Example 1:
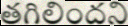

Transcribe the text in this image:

తగిలిందని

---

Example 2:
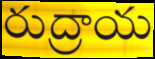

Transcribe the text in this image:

రుద్రాయ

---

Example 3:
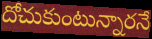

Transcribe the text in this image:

దోచుకుంటున్నారనే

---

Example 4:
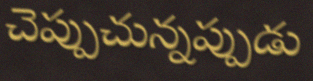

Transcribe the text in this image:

చెప్పుచున్నప్పుడు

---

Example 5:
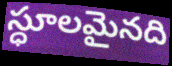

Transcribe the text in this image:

స్ధూలమైనది